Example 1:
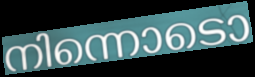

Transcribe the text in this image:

നിന്നൊടൊ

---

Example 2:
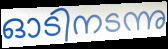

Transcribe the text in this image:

ഓടിനടന്നു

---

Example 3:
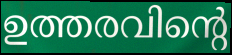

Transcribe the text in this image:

ഉത്തരവിന്റെ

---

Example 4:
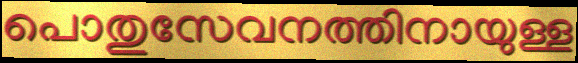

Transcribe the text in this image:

പൊതുസേവനത്തിനായുള്ള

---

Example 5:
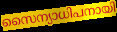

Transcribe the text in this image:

സൈന്യാധിപനായി